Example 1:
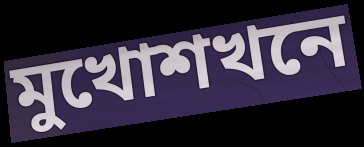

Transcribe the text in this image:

মুখোশখনে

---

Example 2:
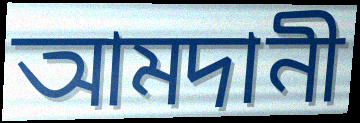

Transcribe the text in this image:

আমদানী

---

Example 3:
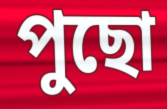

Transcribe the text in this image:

পুছো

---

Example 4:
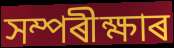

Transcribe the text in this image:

সম্পৰীক্ষাৰ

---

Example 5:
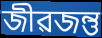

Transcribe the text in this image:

জীৱজন্তু